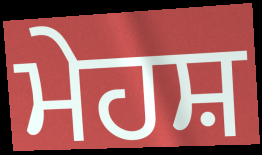
ਮੇਹਸ਼